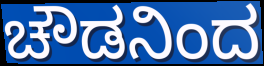
ಚೌಡನಿಂದ